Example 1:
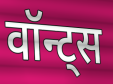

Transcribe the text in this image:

वॉन्ट्स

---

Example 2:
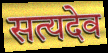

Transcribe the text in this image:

सत्‍यदेव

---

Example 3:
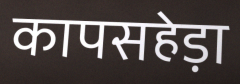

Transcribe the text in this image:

कापसहेड़ा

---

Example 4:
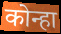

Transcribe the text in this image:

कोन्हा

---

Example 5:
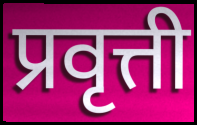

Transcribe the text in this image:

प्रवृत्ती